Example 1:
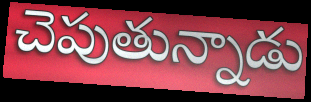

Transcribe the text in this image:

చెపుతున్నాడు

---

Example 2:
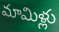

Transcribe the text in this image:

మామిళ్లు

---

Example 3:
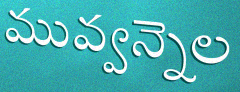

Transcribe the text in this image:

మువ్వన్నెల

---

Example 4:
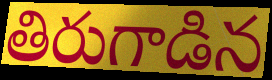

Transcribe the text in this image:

తిరుగాడిన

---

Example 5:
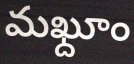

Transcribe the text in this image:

మఖ్దూం